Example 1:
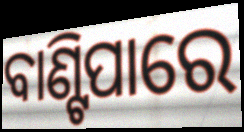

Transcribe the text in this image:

ବାଣ୍ଟିପାରେ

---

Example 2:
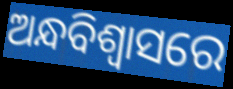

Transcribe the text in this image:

ଅନ୍ଧବିଶ୍ବାସରେ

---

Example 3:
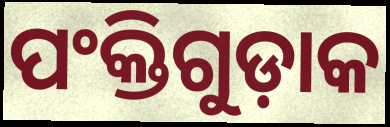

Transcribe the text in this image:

ପଂକ୍ତିଗୁଡ଼ାକ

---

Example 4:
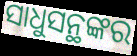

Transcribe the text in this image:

ସାଧୁସନ୍ଥଙ୍କର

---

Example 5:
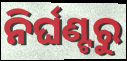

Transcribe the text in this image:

ନିର୍ଘଣ୍ଟରୁ